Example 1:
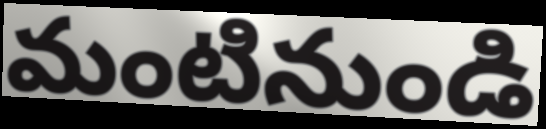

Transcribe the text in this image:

మంటినుండి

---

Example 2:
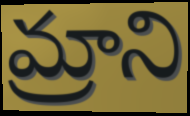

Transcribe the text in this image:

మ్రాని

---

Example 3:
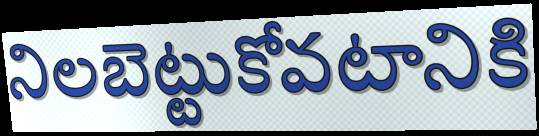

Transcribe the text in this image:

నిలబెట్టుకోవటానికి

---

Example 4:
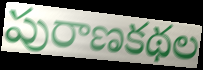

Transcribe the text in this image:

పురాణకథల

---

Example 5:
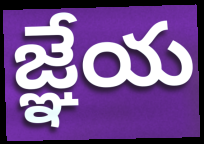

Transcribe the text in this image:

జ్ఞేయ